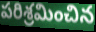
పరిశ్రమించిన